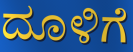
ದೂಳಿಗೆ